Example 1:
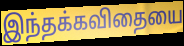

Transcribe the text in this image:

இந்தக்கவிதையை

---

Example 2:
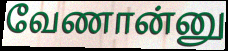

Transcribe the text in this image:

வேணான்னு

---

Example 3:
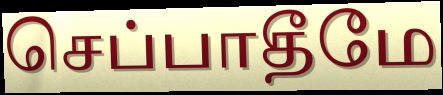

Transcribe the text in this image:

செப்பாதீமே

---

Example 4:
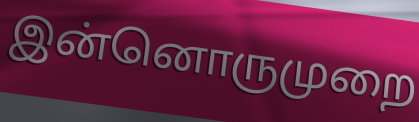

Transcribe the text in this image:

இன்னொருமுறை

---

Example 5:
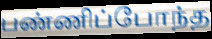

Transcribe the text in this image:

பண்ணிப்போந்த